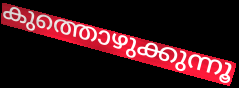
കുത്തൊഴുക്കുന്നൂ